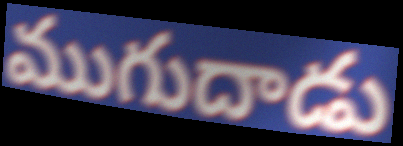
ముగుదాడు